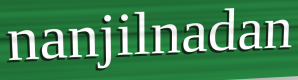
nanjilnadan